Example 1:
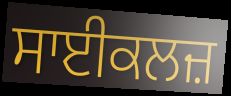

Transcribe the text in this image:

ਸਾਈਕਲਜ਼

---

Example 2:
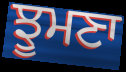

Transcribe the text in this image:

ਝੂਮਣਾ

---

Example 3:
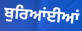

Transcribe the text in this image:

ਬੁਰਿਆਂਈਆਂ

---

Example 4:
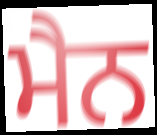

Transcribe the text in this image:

ਮੈਨ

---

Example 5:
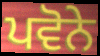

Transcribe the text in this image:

ਪਵੋਨੇ